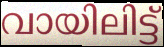
വായിലിട്ട്